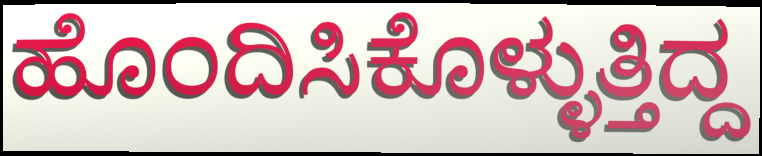
ಹೊಂದಿಸಿಕೊಳ್ಳುತ್ತಿದ್ದ